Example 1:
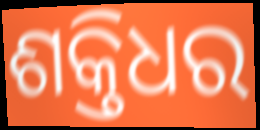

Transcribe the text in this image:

ଶକ୍ତିଧର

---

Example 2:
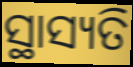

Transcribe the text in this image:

ସ୍ଥାସ୍ୟତି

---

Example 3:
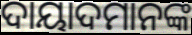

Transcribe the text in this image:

ଦାୟାଦମାନଙ୍କ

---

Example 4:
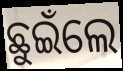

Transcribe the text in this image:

ଛୁଇଁଲେ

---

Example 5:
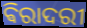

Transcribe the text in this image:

ଵିରାଦରୀ